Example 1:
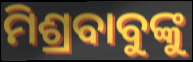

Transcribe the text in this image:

ମିଶ୍ରବାବୁଙ୍କୁ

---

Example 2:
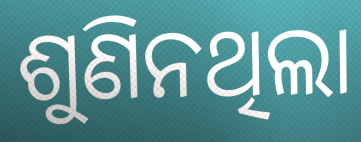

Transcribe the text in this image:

ଶୁଣିନଥିଲା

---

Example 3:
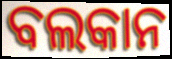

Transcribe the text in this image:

ବଲକାନ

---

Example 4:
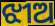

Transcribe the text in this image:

ଝୀଅ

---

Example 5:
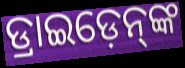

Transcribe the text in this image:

ଡ୍ରାଇଡ଼େନ୍‌ଙ୍କ